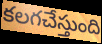
కలగచేస్తుంది